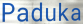
Paduka